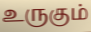
உருகும்